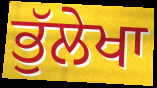
ਭੁੱਲੇਖਾ